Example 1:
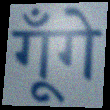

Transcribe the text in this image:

गूँगे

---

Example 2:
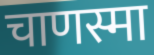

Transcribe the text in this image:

चाणस्मा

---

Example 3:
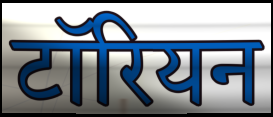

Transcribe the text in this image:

टॉरियन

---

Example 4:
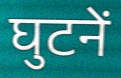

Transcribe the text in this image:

घुटनें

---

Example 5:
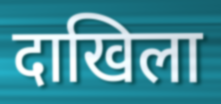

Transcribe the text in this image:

दाखिला